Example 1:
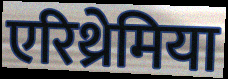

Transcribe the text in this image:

एरिथ्रेमिया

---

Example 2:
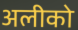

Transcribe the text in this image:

अलीको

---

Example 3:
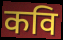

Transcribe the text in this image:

कवि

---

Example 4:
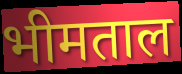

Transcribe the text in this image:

भीमताल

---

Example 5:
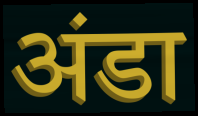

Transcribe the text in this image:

अंडा